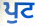
ਪੁਟ